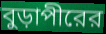
বুড়াপীরের